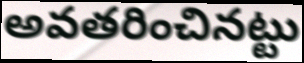
అవతరించినట్టు